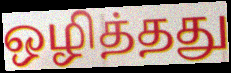
ஒழித்தது